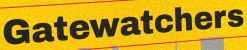
Gatewatchers